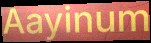
Aayinum